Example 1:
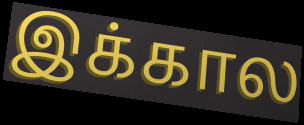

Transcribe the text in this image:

இக்கால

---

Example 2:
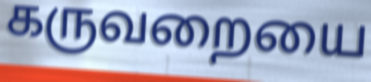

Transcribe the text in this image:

கருவறையை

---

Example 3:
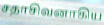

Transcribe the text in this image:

சதாசிவனாகிய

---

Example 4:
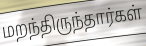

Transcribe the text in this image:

மறந்திருந்தார்கள்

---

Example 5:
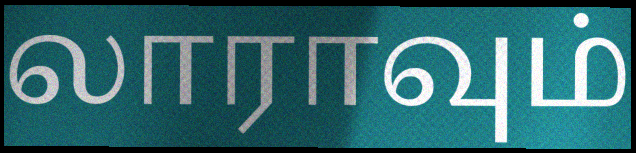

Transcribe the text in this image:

லாராவும்